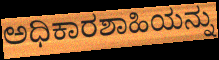
ಅಧಿಕಾರಶಾಹಿಯನ್ನು